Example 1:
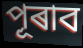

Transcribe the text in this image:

পূৰাব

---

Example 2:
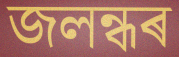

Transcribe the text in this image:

জলন্ধৰ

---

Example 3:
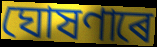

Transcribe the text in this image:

ঘোষণাৰে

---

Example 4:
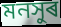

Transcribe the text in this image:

মনসুৰ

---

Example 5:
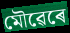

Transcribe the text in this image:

মৌৱেৰে